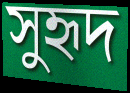
সুহৃদ